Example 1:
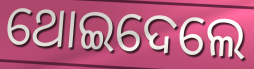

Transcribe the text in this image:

ଥୋଇଦେଲେ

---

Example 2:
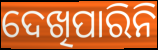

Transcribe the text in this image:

ଦେଖିପାରିନି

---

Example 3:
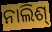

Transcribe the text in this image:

ନାଲିଶ୍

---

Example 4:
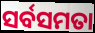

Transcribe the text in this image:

ସର୍ବସମତା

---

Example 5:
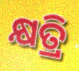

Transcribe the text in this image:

କ୍ଷତ୍ରି